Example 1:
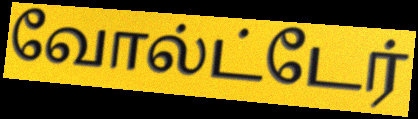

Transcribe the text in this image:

வோல்ட்டேர்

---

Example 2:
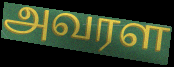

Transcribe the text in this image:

அவரள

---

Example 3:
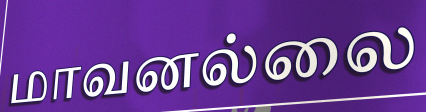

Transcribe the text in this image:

மாவனல்லை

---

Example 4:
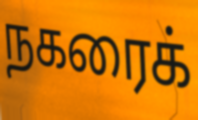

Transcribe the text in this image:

நகரைக்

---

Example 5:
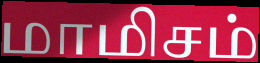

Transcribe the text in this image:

மாமிசம்